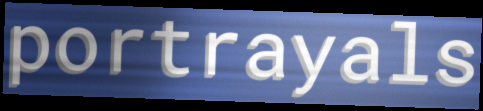
portrayals